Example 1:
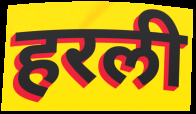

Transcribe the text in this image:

हरली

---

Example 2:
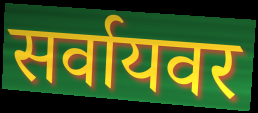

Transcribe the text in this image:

सर्वायवर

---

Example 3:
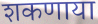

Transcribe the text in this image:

शकणाया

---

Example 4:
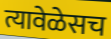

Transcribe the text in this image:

त्यावेळेसच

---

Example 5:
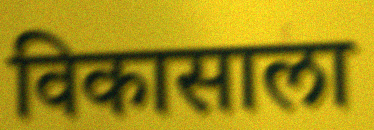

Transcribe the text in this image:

विकासाला